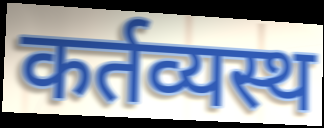
कर्तव्यस्थ